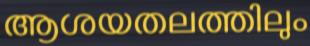
ആശയതലത്തിലും